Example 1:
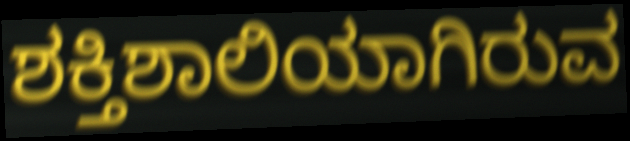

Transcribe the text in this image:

ಶಕ್ತಿಶಾಲಿಯಾಗಿರುವ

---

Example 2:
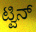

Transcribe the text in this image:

ಟ್ವಿನ್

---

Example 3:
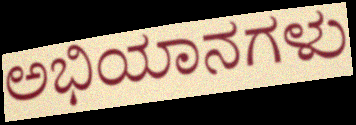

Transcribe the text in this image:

ಅಭಿಯಾನಗಳು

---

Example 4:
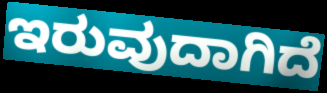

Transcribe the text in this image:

ಇರುವುದಾಗಿದೆ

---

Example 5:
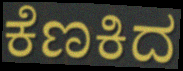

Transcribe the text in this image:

ಕೆಣಕಿದ